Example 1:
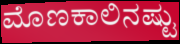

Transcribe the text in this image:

ಮೊಣಕಾಲಿನಷ್ಟು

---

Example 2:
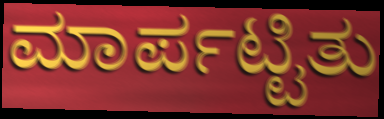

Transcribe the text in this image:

ಮಾರ್ಪಟ್ಟಿತು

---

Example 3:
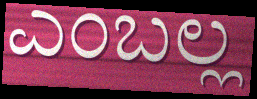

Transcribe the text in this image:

ಎಂಬಲ್ಲ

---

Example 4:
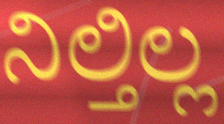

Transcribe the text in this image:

ನಿಲ್ತಿಲ್ಲ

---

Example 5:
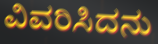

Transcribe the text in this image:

ವಿವರಿಸಿದನು